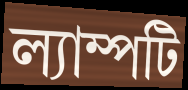
ল্যাম্পটি